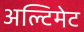
अल्टिमेट